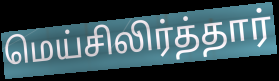
மெய்சிலிர்த்தார்